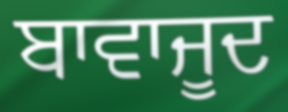
ਬਾਵਾਜੂਦ